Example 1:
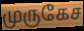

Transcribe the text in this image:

முருகேச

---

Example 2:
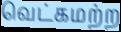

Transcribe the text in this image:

வெட்கமற்ற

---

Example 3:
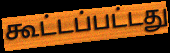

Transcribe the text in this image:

கூட்டப்பட்டது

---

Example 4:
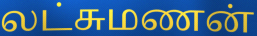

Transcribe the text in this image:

லட்சுமணன்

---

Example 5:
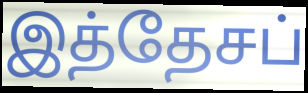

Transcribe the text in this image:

இத்தேசப்